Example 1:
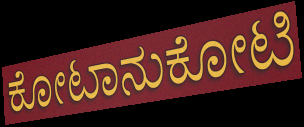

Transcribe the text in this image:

ಕೋಟಾನುಕೋಟಿ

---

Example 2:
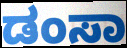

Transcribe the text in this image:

ಡಂಸಾ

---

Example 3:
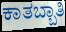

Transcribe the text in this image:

ಕಾತಬ್ಬಾತಿ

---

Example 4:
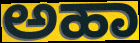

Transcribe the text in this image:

ಅಹಾ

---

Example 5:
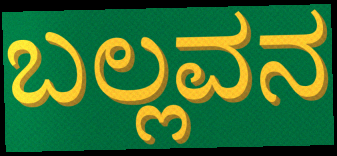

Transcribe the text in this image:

ಬಲ್ಲವನ